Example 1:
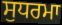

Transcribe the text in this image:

ਸੁਧਰਮਾ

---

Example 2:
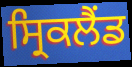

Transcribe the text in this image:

ਸ੍ਰਿਕਲੈਂਡ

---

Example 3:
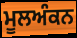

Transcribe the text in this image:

ਮੂਲਅੰਕਨ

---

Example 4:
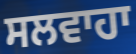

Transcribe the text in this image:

ਸਲਵਾਹਾ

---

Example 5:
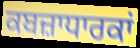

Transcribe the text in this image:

ਕਬਜ਼ਾਧਾਰਕਾਂ